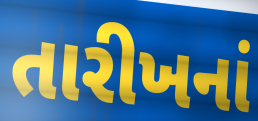
તારીખનાં